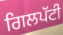
ਗਿਲਪੱਟੀ